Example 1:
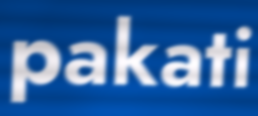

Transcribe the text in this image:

pakati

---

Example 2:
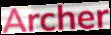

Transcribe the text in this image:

Archer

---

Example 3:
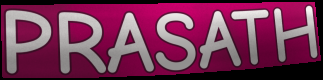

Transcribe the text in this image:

PRASATH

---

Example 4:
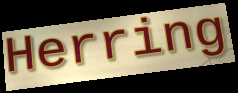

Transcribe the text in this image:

Herring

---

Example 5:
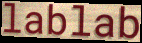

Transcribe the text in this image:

lablab